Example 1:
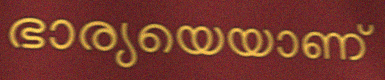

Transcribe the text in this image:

ഭാര്യയെയാണ്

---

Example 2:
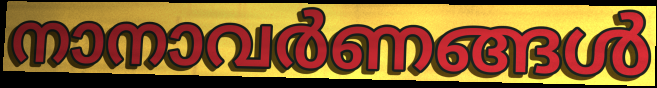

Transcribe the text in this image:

നാനാവർണങ്ങൾ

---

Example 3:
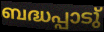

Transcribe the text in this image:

ബദ്ധപ്പാടു്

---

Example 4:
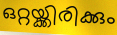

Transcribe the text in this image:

ഒറ്റയ്ക്കിരിക്കും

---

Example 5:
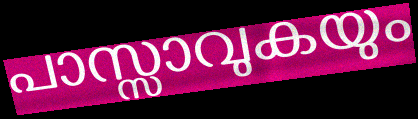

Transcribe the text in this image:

പാസ്സാവുകയും